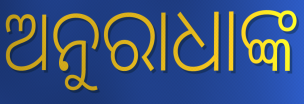
ଅନୁରାଧାଙ୍କ